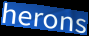
herons